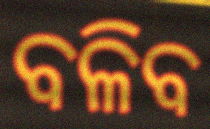
ବଳିବ